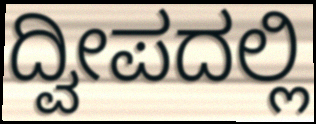
ದ್ವೀಪದಲ್ಲಿ